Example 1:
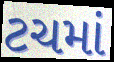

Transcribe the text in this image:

ટચમાં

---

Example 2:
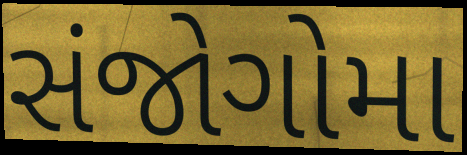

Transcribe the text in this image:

સંજોગોમા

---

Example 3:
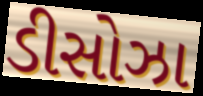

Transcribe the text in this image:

ડીસોઝા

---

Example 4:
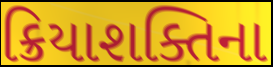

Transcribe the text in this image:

ક્રિયાશક્તિના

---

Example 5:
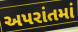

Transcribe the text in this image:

અપરાંતમાં